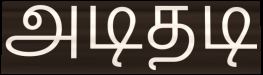
அடிதடி